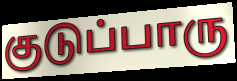
குடுப்பாரு